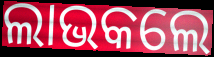
ଲାଭକଲେ